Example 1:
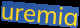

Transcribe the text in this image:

uremia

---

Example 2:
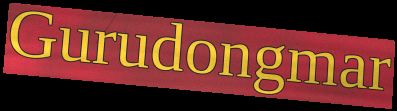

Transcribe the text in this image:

Gurudongmar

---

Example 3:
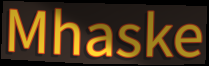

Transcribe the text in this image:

Mhaske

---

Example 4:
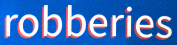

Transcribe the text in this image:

robberies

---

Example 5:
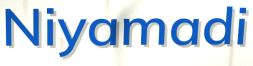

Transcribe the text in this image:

Niyamadi